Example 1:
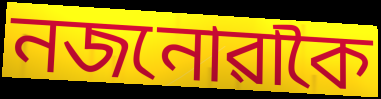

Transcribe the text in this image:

নজনোৱাকৈ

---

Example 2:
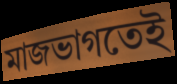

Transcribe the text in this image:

মাজভাগতেই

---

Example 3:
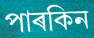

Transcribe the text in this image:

পাৰকিন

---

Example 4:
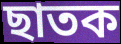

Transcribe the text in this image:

ছাতক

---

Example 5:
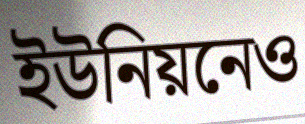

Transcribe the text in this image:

ইউনিয়নেও